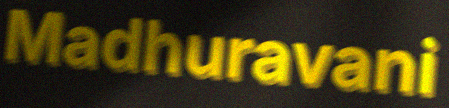
Madhuravani